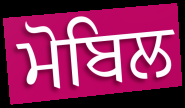
ਮੋਬਿਲ